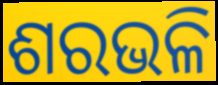
ଶରଭଳି